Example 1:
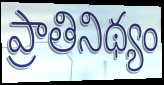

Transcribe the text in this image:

ప్రాతినిథ్యం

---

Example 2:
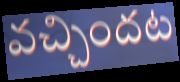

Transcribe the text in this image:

వచ్చిందట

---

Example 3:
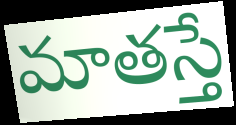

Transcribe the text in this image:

మాతస్తే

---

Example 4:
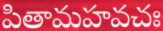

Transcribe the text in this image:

పితామహవచః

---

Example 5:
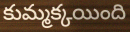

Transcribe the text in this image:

కుమ్మక్కయింది